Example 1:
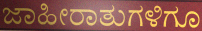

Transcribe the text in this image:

ಜಾಹೀರಾತುಗಳಿಗೂ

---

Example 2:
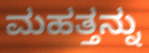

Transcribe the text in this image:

ಮಹತ್ತನ್ನು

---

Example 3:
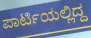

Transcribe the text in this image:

ಪಾರ್ಟಿಯಲ್ಲಿದ್ದ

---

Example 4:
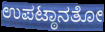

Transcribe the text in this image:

ಉಪಟ್ಠಾನತೋ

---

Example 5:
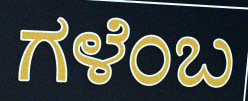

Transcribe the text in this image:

ಗಳೆಂಬ